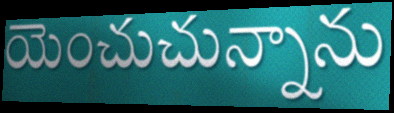
యెంచుచున్నాను